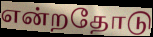
என்றதோடு